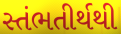
સ્તંભતીર્થથી